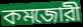
কমজোরী